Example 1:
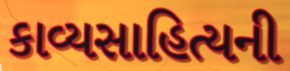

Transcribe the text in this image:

કાવ્યસાહિત્યની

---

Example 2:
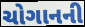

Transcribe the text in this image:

ચોગાનની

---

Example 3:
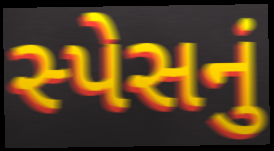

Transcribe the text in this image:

સ્પેસનું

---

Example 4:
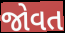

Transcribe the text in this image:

જોવત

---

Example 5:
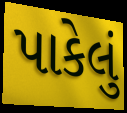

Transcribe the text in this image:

પાકેલું